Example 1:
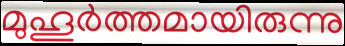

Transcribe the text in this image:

മുഹൂർത്തമായിരുന്നു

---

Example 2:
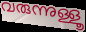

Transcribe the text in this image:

വരുന്നുള്ളൂ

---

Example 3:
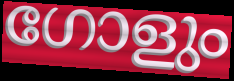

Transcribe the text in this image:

ഗോളും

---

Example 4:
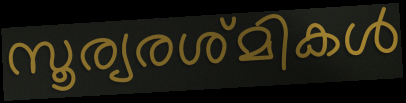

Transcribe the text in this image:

സൂര്യരശ്മികൾ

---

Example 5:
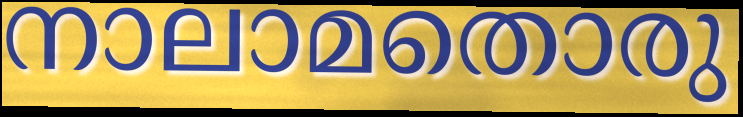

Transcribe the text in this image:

നാലാമതൊരു